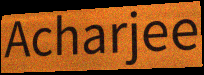
Acharjee